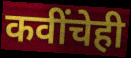
कवींचेही